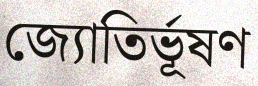
জ্যোতির্ভূষণ